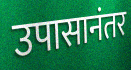
उपासानंतर